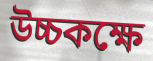
উচ্চকক্ষে